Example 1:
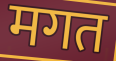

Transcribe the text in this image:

मगत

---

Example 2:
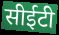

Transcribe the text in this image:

सीईटी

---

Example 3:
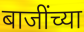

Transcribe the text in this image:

बाजींच्या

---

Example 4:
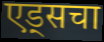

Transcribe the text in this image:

एड्सचा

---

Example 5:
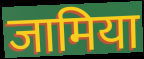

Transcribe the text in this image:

जामिया